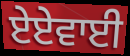
ਏਏਵਾਈ